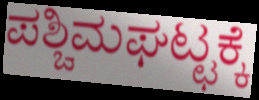
ಪಶ್ಚಿಮಘಟ್ಟಕ್ಕೆ